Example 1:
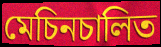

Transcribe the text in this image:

মেচিনচালিত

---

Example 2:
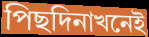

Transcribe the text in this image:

পিছদিনাখনেই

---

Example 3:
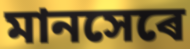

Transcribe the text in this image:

মানসেৰে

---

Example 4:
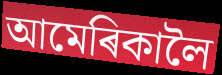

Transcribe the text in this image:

আমেৰিকালৈ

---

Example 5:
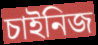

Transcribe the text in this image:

চাইনিজ